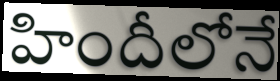
హిందీలోనే